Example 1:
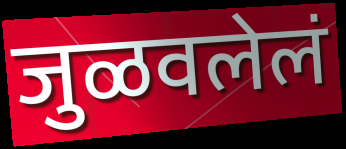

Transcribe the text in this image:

जुळवलेलं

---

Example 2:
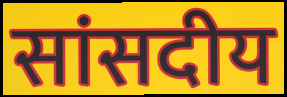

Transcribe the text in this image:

सांसदीय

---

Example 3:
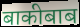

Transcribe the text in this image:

बाकीबाब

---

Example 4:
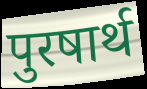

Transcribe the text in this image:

पुरषार्थ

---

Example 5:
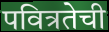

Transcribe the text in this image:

पवित्रतेची